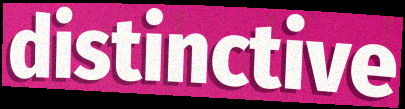
distinctive